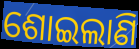
ଶୋଇଲାଣି